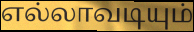
எல்லாவடியும்